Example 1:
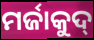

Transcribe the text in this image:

ମର୍ଜାକୁଦ୍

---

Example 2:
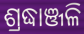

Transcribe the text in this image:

ଶ୍ରଦ୍ଧାଞ୍ଜଳି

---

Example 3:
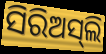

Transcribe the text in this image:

ସିରିଅସ୍‌ଲି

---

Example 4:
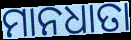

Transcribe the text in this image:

ମାନଧାତା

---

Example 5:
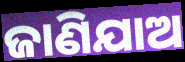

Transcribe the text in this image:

ଜାଣିଯାଅ